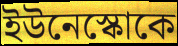
ইউনেস্কোকে